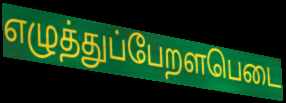
எழுத்துப்பேறளபெடை